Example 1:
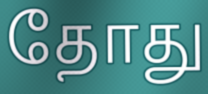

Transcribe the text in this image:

தோது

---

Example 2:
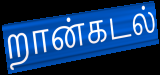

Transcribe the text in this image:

றான்கடல்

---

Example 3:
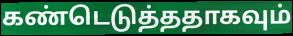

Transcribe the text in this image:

கண்டெடுத்ததாகவும்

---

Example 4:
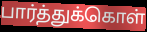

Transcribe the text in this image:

பார்த்துக்கொள்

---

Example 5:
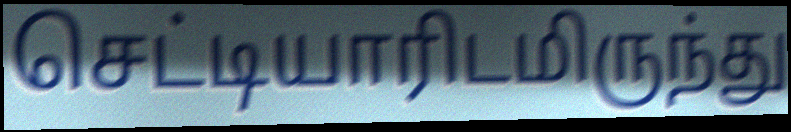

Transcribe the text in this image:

செட்டியாரிடமிருந்து